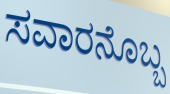
ಸವಾರನೊಬ್ಬ